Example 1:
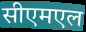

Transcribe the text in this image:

सीएमएल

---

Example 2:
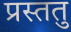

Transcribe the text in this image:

प्रस्ततु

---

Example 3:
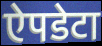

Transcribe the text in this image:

ऐपडेटा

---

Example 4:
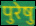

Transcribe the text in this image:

पुरेषु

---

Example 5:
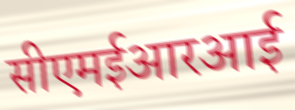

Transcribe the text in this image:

सीएमईआरआई